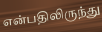
என்பதிலிருந்து